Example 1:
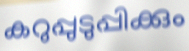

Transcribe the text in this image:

കറുപ്പുടുപ്പിക്കും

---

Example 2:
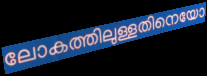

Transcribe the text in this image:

ലോകത്തിലുള്ളതിനെയോ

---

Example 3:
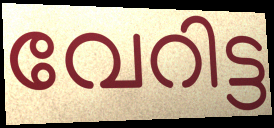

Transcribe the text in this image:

വേറിട്ട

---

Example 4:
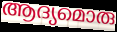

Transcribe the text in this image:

ആദ്യമൊരു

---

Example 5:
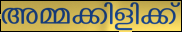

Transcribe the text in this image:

അമ്മക്കിളിക്ക്